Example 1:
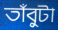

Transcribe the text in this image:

তাঁবুটা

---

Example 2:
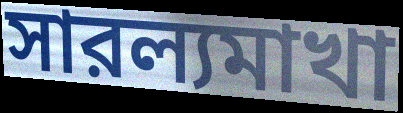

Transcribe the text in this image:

সারল্যমাখা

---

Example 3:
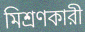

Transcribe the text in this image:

মিশ্রণকারী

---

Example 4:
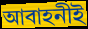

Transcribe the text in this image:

আবাহনীই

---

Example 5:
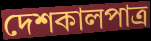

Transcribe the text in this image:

দেশকালপাত্র